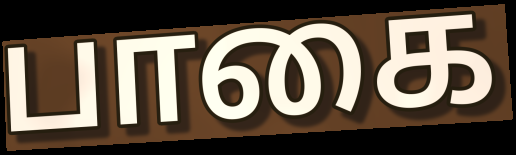
பாகை